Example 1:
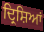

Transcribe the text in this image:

ਦ੍ਰਿਸ਼ਿਆਂ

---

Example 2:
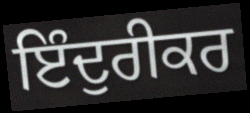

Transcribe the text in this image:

ਇੰਦੁਰੀਕਰ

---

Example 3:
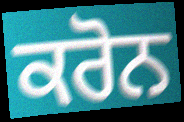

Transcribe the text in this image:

ਕਰੋਨ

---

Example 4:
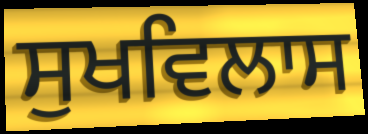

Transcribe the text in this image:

ਸੁਖਵਿਲਾਸ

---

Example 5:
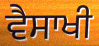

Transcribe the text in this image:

ਵੈਸਾਖੀ